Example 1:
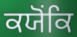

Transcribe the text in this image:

ਕਯੋਂਕਿ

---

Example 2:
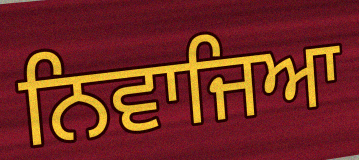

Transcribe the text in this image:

ਨਿਵਾਜਿਆ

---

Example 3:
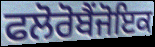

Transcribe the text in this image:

ਫਲੋਰੋਬੈਂਜੋਇਕ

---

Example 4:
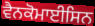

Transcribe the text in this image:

ਵੈਨਕੋਮਾਈਸਿਨ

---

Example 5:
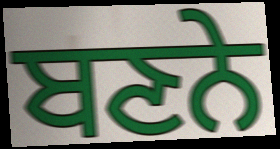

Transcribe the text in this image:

ਬਣਨੇ